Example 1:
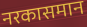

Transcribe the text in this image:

नरकासमान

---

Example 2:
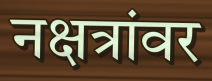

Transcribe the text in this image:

नक्षत्रांवर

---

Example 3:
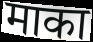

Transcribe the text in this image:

माका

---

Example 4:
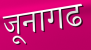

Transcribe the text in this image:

जूनागढ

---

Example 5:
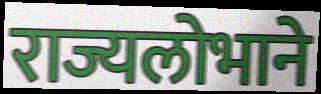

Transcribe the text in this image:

राज्यलोभाने